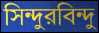
সিন্দুরবিন্দু